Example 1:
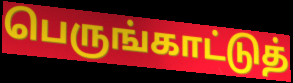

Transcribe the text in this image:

பெருங்காட்டுத்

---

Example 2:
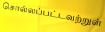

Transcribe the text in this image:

சொல்லப்பட்டவற்றுள்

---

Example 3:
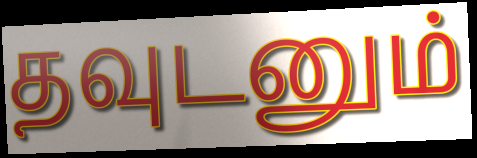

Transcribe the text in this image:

தவுடனும்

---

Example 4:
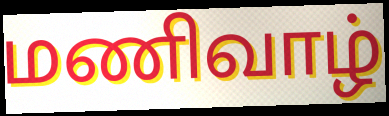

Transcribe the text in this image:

மணிவாழ்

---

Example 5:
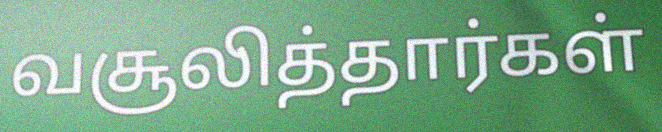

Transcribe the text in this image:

வசூலித்தார்கள்